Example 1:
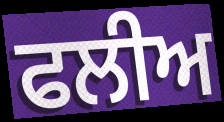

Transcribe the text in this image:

ਫਲੀਅ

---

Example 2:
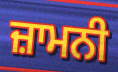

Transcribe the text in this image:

ਜ਼ਾਮਨੀ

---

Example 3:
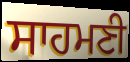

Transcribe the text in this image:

ਸਾਹਮਣੀ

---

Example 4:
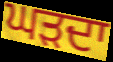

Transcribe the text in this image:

ਘੜਦਾ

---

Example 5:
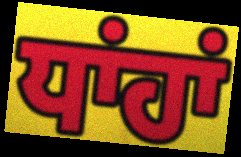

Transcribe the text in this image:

ਧਾਂਹਾਂ